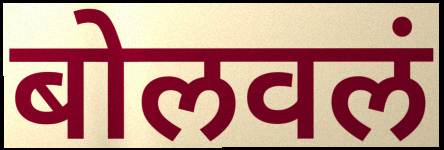
बोलवलं